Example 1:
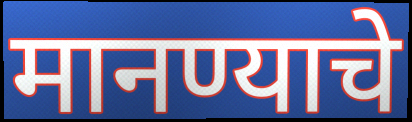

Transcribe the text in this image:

मानण्याचे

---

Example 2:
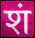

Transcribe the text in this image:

शं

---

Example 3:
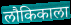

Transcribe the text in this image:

लौकिकाला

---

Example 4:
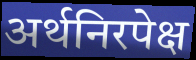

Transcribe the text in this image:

अर्थनिरपेक्ष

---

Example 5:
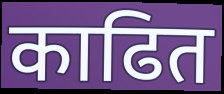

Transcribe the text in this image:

काढित